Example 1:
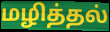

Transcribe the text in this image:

மழித்தல்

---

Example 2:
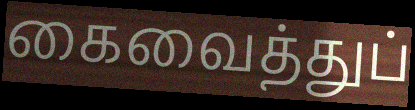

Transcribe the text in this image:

கைவைத்துப்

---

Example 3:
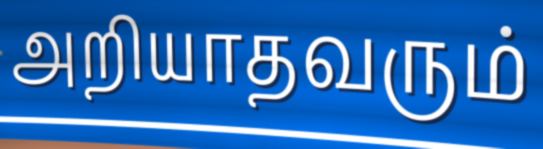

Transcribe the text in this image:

அறியாதவரும்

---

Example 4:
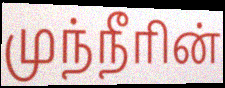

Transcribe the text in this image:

முந்நீரின்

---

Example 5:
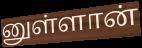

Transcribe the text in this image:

னுள்ளான்